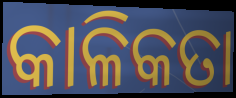
କାଳିକତା